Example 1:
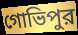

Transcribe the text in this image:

গোভিপুর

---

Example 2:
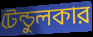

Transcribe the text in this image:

টেন্ডুলকার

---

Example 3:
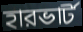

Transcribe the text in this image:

হারভার্ট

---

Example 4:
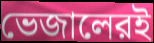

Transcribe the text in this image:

ভেজালেরই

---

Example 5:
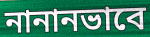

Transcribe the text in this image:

নানানভাবে